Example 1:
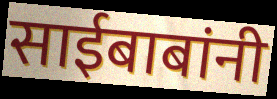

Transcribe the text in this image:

साईबाबांनी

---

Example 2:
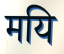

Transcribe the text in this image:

मयि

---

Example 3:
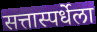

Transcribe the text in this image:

सत्तास्पर्धेला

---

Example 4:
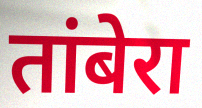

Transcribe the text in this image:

तांबेरा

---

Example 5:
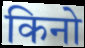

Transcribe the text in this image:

किनो